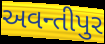
અવન્તીપુર